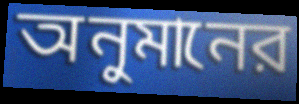
অনুমানের